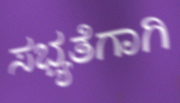
ಸಭ್ಯತೆಗಾಗಿ